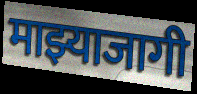
माझ्याजागी